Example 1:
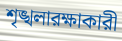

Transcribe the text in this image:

শৃঙ্খলারক্ষাকারী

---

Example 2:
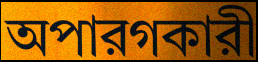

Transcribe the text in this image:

অপারগকারী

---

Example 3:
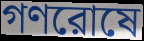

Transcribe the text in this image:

গণরোষে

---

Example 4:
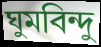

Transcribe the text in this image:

ঘুমবিন্দু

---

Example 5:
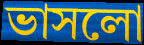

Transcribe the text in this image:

ভাসলো